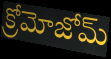
క్రోమోజోమ్